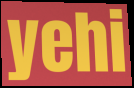
yehi